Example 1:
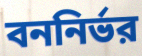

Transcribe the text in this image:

বননির্ভর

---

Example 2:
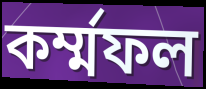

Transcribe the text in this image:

কর্ম্মফল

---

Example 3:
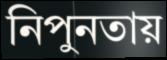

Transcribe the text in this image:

নিপুনতায়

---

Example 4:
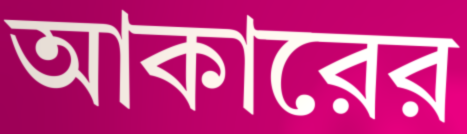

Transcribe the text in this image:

আকারের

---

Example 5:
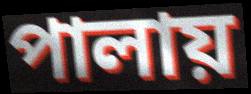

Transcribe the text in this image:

পালায়